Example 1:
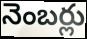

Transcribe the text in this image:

నెంబర్లు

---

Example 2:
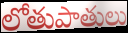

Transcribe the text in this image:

లోతుపాతులు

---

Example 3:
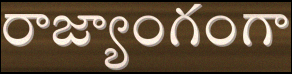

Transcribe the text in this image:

రాజ్యాంగంగా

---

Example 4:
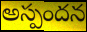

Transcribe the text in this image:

అస్పందన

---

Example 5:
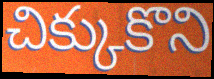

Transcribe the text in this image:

చిక్కుకొని